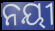
ନୟୀ